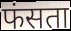
फंसता